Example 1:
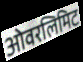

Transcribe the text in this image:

ओवरलिमिट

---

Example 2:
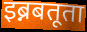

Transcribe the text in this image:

इब्नबतूता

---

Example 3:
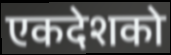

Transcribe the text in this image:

एकदेशको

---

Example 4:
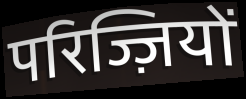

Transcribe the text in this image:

परिज्ज़ियों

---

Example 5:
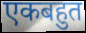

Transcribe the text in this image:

एकबहुत